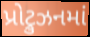
પ્રોટ્રુઝનમાં